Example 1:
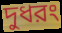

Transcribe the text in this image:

দুধরং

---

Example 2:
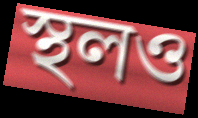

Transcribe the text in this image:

স্থলও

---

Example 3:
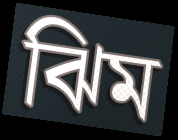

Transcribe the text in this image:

ঝিম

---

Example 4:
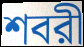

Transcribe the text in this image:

শবরী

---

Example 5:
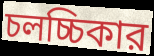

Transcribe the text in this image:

চলচ্চিকার